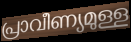
പ്രാവീണ്യമുള്ള